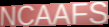
NCAAFS